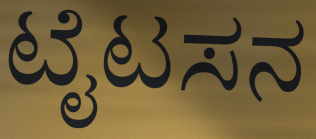
ಟೈಟಸನ